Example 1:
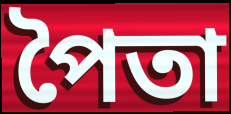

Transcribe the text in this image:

পৈতা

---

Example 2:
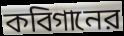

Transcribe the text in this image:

কবিগানের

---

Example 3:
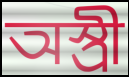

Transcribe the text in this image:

অস্ত্রী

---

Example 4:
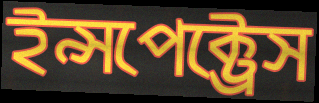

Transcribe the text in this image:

ইন্সপেক্ট্রেস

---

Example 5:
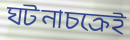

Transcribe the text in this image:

ঘটনাচক্রেই